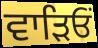
ਵਾੜਿਓਂ